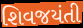
શિવજયંતી